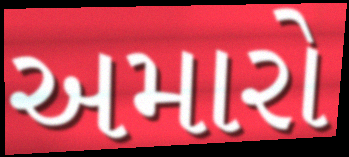
અમારો